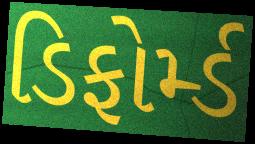
ડિફોર્મ્ડ